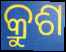
କ୍ରୁଶ